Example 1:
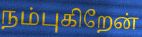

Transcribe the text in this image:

நம்புகிறேன்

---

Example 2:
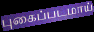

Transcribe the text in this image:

புகைப்படமாய்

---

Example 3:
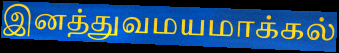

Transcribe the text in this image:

இனத்துவமயமாக்கல்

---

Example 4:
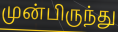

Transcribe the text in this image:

முன்பிருந்து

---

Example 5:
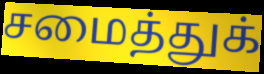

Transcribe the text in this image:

சமைத்துக்